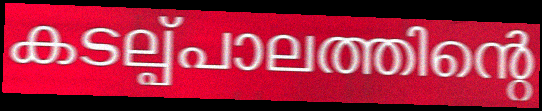
കടല്പ്പാലത്തിന്റെ